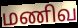
மணிவ